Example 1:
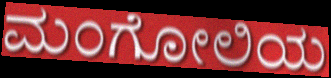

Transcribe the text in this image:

ಮಂಗೋಲಿಯ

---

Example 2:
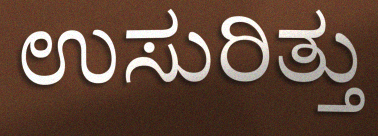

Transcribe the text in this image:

ಉಸುರಿತ್ತು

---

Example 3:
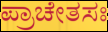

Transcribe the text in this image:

ಪ್ರಾಚೇತಸಃ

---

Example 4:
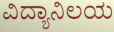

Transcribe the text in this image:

ವಿದ್ಯಾನಿಲಯ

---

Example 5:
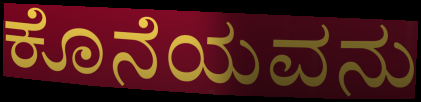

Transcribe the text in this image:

ಕೊನೆಯವನು